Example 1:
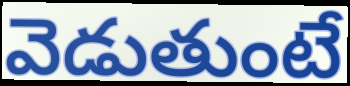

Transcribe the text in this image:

వెడుతుంటే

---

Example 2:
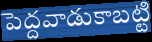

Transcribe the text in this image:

పెద్దవాడుకాబట్టి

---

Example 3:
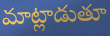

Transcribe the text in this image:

మాట్లాడుతూ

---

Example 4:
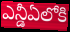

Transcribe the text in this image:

ఎన్డీఏలోకి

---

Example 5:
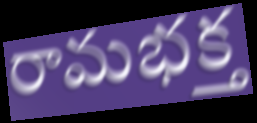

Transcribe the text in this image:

రామభక్త